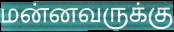
மன்னவருக்கு